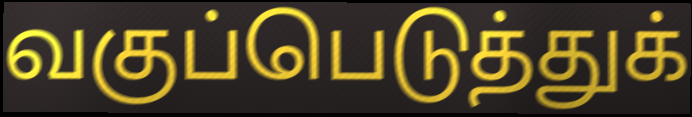
வகுப்பெடுத்துக்